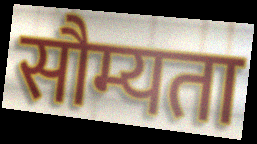
सौम्यता